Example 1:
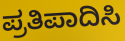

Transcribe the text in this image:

ಪ್ರತಿಪಾದಿಸಿ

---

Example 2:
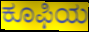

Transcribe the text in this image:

ಕೂಫಿಯ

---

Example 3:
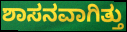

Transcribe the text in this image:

ಶಾಸನವಾಗಿತ್ತು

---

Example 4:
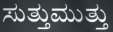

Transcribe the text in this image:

ಸುತ್ತುಮುತ್ತು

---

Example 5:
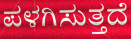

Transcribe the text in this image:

ಪಳಗಿಸುತ್ತದೆ